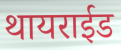
थायराईड